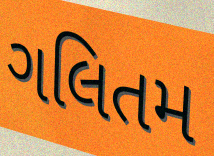
ગલિતમ